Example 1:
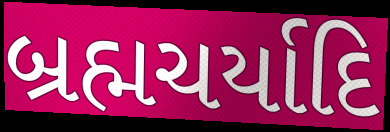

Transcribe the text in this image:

બ્રહ્મચર્યાદિ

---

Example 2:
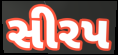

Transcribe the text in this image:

સીરપ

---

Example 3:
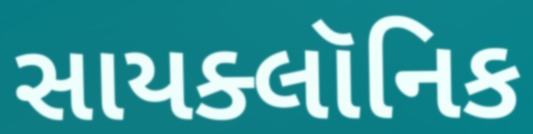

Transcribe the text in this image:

સાયક્લૉનિક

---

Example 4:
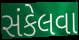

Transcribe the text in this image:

સંકેલવા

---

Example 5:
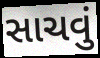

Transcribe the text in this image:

સાચવું